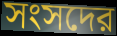
সংসদের